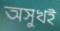
অসুখই